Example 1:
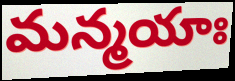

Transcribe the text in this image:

మన్మయాః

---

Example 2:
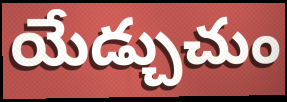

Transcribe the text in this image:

యేడ్చుచుం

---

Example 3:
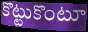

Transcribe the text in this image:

కొట్టుకొంటూ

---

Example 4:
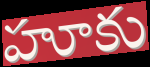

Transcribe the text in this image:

హూకు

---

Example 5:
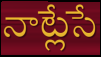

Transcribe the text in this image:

నాట్లేసే